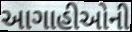
આગાહીઓની